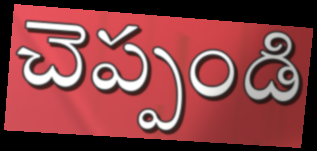
చెప్పండి